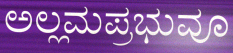
ಅಲ್ಲಮಪ್ರಭುವೂ